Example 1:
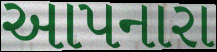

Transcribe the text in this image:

આપનારા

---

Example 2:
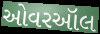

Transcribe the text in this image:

ઓવરઑલ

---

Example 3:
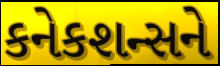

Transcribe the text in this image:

કનેકશન્સને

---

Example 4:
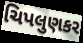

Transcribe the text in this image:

ચિપલુણકર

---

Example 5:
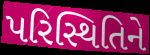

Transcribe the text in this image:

પરિસ્થિતિને